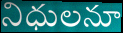
నిధులనూ